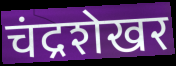
चंद्रशेखर